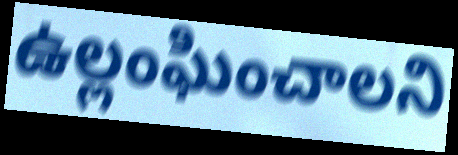
ఉల్లంఘించాలని